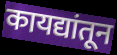
कायद्यांतून